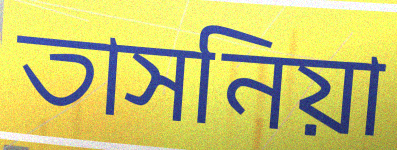
তাসনিয়া